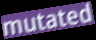
mutated